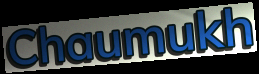
Chaumukh